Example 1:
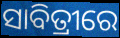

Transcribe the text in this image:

ସାବିତ୍ରୀରେ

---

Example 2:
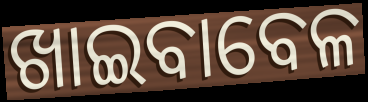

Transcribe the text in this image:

ଖାଇବାବେଳ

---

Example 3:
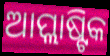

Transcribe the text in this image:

ଆପ୍ଲାଷ୍ଟିକ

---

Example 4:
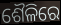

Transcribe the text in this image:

ଶୈଳିରେ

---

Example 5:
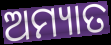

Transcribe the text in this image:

ଅମ୍ୟାତ